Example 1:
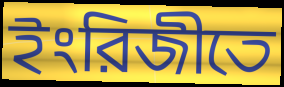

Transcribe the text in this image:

ইংরিজীতে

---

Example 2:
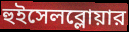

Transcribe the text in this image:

হুইসেলব্লোয়ার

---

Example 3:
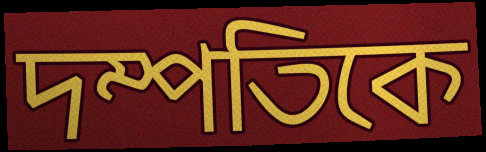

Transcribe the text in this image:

দম্পতিকে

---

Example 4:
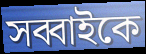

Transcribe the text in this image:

সব্বাইকে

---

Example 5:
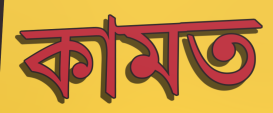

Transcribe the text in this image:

কামত